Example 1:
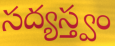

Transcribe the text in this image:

సద్యస్త్వం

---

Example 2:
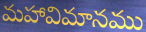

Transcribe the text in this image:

మహావిమానము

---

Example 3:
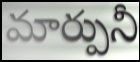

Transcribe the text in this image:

మార్పునీ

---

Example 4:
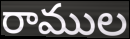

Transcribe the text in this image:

రాముల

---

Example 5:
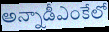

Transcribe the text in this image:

అన్నాడీఎంకేలో